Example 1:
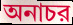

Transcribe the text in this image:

অনাচর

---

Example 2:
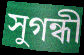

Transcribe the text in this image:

সুগন্ধী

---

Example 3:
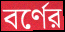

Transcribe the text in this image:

বর্ণের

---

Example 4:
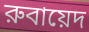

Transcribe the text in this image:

রুবায়েদ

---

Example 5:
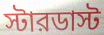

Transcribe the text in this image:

স্টারডাস্ট